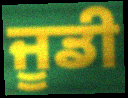
ਜੂਡੀ